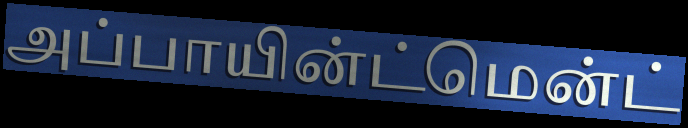
அப்பாயின்ட்மென்ட்